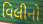
વિલીનો